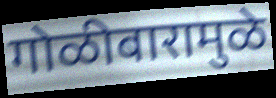
गोळीबारामुळे